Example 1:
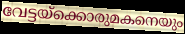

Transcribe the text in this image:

വേട്ടയ്ക്കൊരുമകനെയും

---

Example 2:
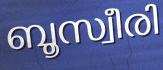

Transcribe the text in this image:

ബൂസ്വീരി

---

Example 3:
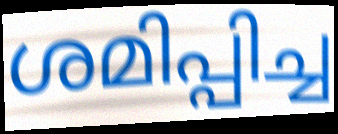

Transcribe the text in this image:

ശമിപ്പിച്ച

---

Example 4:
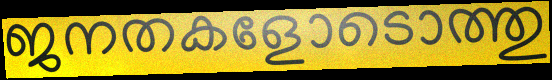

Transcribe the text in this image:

ജനതകളോടൊത്തു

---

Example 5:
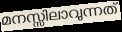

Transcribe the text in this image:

മനസ്സിലാവുന്നത്